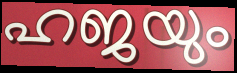
ഹജയും